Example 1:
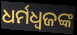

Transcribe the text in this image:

ଧର୍ମଧ୍ୱଜଙ୍କ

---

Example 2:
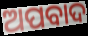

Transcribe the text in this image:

ଅପବାଦ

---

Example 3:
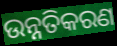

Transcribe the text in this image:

ଉନ୍ନତିକରଣ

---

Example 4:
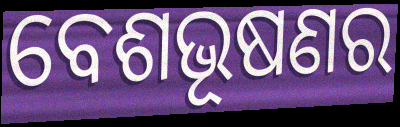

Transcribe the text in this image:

ବେଶଭୂଷଣର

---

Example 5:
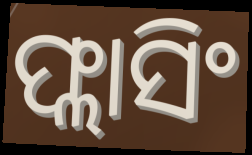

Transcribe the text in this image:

ଫ୍ଲାସିଂ